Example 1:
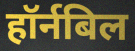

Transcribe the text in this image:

हॉर्नबिल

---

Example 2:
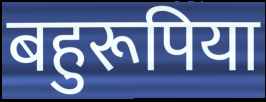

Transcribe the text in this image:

बहुरूपिया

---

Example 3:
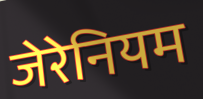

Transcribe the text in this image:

जेरेनियम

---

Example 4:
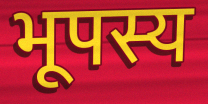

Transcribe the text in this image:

भूपस्य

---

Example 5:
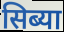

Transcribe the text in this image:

सिब्या